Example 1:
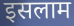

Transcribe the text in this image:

इसलाम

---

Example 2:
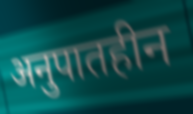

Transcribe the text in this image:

अनुपातहीन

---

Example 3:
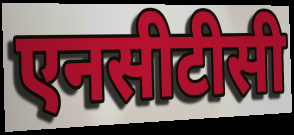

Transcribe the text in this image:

एनसीटीसी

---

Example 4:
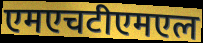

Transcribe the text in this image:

एमएचटीएमएल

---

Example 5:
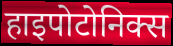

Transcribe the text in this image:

हाइपोटोनिक्स